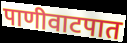
पाणीवाटपात